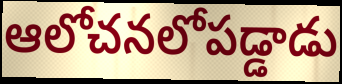
ఆలోచనలోపడ్డాడు